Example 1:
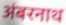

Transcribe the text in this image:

अंबरनाथ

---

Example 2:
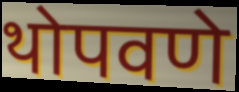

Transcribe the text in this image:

थोपवणे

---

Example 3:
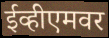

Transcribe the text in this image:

ईव्हीएमवर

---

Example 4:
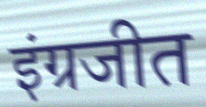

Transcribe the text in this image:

इंग्रजीत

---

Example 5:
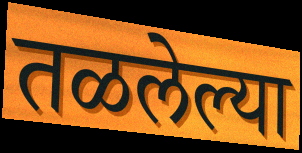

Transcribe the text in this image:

तळलेल्या